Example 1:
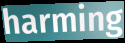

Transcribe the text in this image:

harming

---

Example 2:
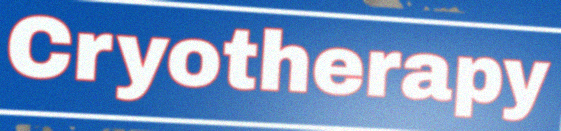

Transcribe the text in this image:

Cryotherapy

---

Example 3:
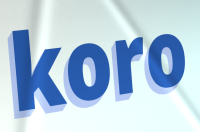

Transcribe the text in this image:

koro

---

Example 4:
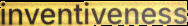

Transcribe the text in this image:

inventiveness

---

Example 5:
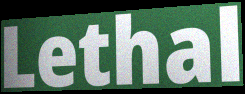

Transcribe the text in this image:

Lethal